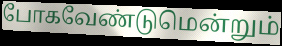
போகவேண்டுமென்றும்